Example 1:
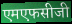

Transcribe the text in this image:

एमएफसीजी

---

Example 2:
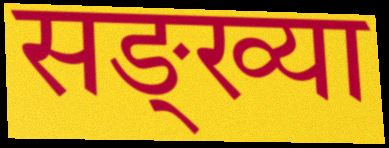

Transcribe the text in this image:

सङ्ख्या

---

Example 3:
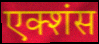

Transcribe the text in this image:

एक्शंस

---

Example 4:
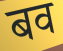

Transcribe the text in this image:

बव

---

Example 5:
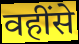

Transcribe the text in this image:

वहींसे